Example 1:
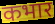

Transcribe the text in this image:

कभार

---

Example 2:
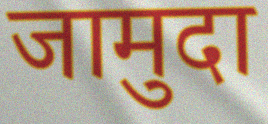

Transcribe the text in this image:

जामुदा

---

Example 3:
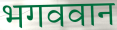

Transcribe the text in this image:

भगववान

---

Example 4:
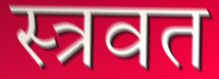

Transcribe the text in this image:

स्त्रवत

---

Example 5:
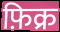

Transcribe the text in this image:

फ़िक्र